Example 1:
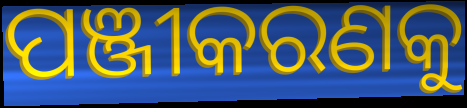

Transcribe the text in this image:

ପଞ୍ଜୀକରଣକୁ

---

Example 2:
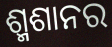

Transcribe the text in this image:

ଶ୍ମଶାନର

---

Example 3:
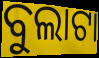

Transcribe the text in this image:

ବୁଲାଟା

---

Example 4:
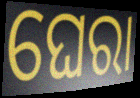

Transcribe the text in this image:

ଘେରା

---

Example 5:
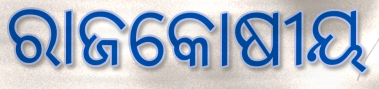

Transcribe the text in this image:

ରାଜକୋଷୀୟ